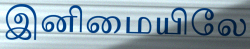
இனிமையிலே